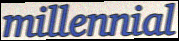
millennial